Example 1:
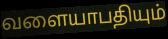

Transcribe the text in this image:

வளையாபதியும்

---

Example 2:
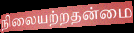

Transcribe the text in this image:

நிலையற்றதன்மை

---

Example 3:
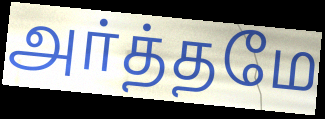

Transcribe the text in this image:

அர்த்தமே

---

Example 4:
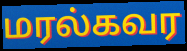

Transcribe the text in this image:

மரல்கவர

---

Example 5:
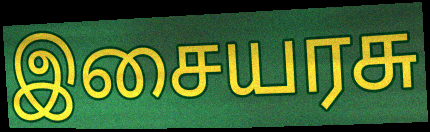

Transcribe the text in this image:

இசையரசு